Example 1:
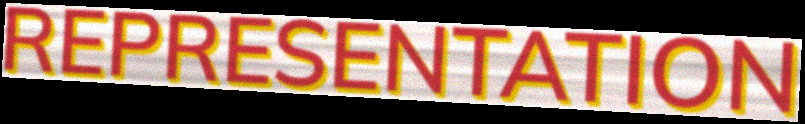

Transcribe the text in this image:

REPRESENTATION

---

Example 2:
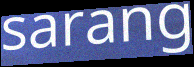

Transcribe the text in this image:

sarang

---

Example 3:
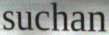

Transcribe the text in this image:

suchan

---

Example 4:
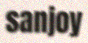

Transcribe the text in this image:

sanjoy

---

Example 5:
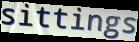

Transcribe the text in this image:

sittings